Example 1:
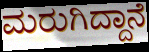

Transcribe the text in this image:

ಮರುಗಿದ್ದಾನೆ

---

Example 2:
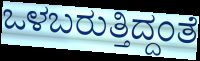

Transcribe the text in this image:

ಒಳಬರುತ್ತಿದ್ದಂತೆ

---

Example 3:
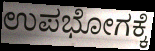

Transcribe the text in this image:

ಉಪಭೋಗಕ್ಕೆ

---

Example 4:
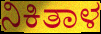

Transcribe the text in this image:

ನಿಕಿತಾಳ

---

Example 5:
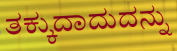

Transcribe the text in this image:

ತಕ್ಕುದಾದುದನ್ನು